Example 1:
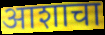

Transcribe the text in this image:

आशाचा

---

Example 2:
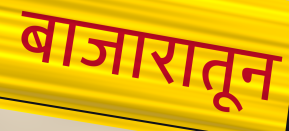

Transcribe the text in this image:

बाजारातून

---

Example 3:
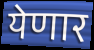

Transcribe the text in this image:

येणार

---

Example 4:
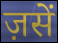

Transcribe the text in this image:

ज़सें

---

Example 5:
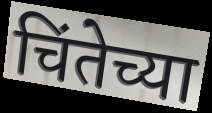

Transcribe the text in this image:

चिंतेच्या